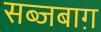
सब्जबाग़